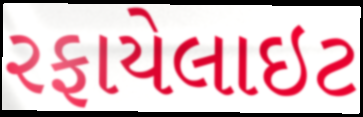
રફાયેલાઇટ